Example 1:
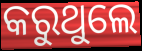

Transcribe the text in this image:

କରୁଥୁଲେ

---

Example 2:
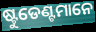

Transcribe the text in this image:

ଷ୍ଟୁଡେଣ୍ଟମାନେ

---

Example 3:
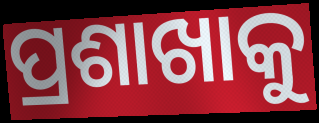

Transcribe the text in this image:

ପ୍ରଶାଖାକୁ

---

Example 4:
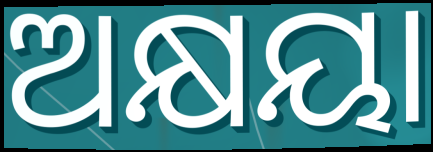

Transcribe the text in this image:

ଅକ୍ଷୟା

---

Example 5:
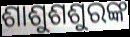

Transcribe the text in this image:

ଶାଶୁଶଶୁରଙ୍କ